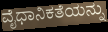
ವೈಧಾನಿಕತೆಯನ್ನು